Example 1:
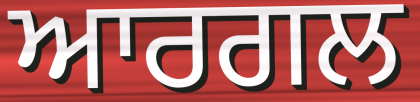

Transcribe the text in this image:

ਆਰਗਲ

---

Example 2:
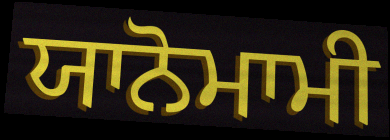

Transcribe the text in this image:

ਯਾਨੋਮਾਮੀ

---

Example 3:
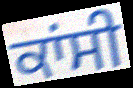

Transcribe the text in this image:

ਕਾਂਸੀ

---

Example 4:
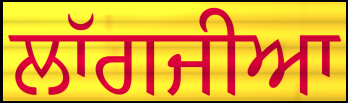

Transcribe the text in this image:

ਲਾੱਗਜੀਆ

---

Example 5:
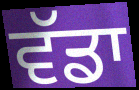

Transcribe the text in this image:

ਵੱਡਾ